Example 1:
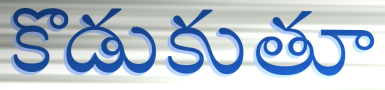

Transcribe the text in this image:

కొడుకుతూ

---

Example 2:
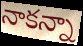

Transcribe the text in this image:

నాకన్నా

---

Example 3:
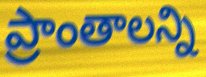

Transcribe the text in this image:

ప్రాంతాలన్ని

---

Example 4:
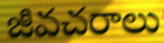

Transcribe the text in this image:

జీవచరాలు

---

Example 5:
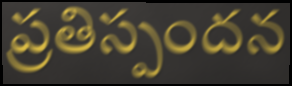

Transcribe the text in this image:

ప్రతిస్పందన